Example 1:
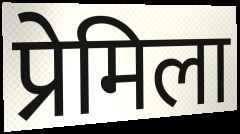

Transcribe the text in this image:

प्रेमिला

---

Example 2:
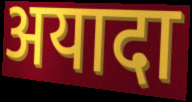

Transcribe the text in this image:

अयादा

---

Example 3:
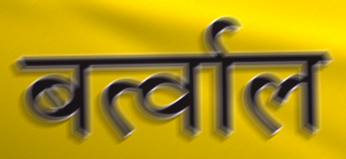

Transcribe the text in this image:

बर्त्वाल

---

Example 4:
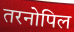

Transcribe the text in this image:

तरनोपिल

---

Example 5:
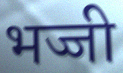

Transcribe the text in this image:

भज्जी